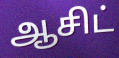
ஆசிட்